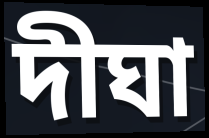
দীঘা